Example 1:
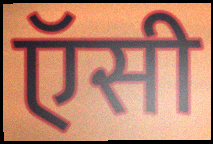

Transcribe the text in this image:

ऍसी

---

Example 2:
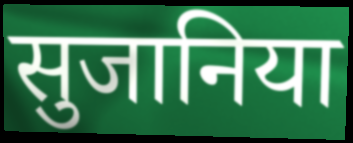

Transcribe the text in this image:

सुजानिया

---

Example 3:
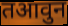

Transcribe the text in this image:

तआवुन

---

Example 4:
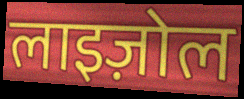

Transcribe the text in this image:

लाइज़ोल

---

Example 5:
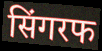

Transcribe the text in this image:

सिंगरफ